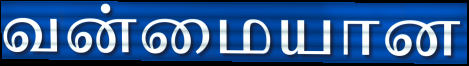
வன்மையான